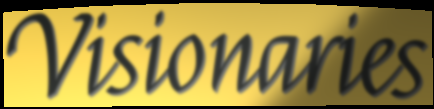
Visionaries